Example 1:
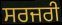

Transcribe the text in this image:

ਸਰਜਰੀ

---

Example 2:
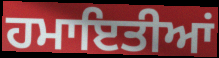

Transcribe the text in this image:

ਹਮਾਇਤੀਆਂ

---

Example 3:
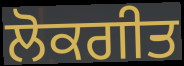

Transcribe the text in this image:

ਲੋਕਗੀਤ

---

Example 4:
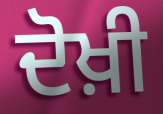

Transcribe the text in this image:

ਦੋਖ਼ੀ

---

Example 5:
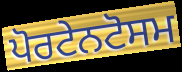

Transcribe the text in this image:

ਪੋਰਟੇਨਟੋਸਮ